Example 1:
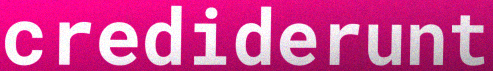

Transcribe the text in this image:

crediderunt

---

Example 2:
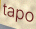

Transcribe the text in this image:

tapo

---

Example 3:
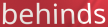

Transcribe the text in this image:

behinds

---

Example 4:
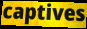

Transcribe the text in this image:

captives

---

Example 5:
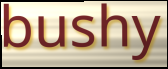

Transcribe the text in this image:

bushy